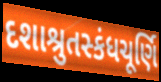
દશાશ્રુતસ્કંધચૂર્ણિ